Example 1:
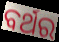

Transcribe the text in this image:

ବର୍ଥର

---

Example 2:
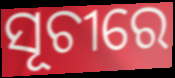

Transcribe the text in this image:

ସୂଚୀରେ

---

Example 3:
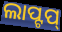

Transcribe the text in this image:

ଲାପ୍ଟପ୍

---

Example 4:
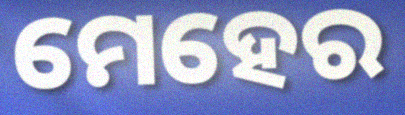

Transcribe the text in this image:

ମେହେର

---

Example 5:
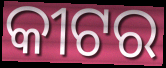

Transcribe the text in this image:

କୀଟର